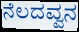
ನೆಲದವ್ವನ